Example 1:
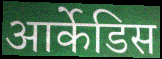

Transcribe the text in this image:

आर्केडिस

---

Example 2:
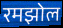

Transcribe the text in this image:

रमझोल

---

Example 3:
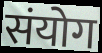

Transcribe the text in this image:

संयोग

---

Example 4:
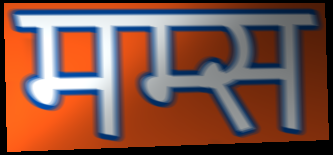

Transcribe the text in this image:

मम्स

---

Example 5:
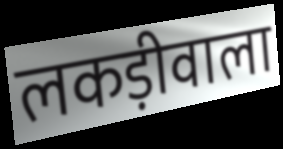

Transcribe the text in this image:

लकड़ीवाला